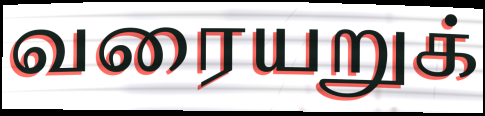
வரையறுக்